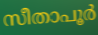
സീതാപൂർ